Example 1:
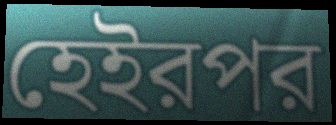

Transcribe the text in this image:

হেইরপর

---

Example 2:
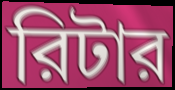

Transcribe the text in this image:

রিটার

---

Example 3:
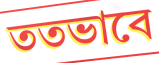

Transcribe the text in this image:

ততভাবে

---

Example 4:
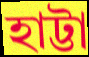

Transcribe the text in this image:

হাট্টা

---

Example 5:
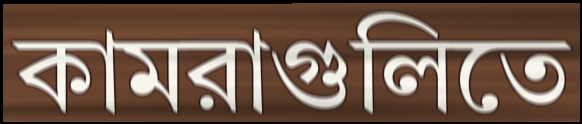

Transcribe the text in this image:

কামরাগুলিতে